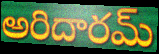
అరిదారమ్